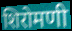
शिरोमणी